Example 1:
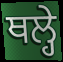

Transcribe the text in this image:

ਥਲ੍ਹੇ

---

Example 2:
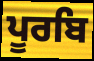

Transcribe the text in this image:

ਪੂਰਬਿ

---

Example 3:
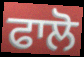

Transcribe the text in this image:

ਫਾਲੋ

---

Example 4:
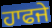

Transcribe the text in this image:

ਹਾਫਜੇ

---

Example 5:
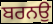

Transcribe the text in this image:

ਬਰਨਉ